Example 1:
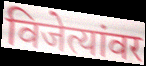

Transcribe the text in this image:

विजेत्यांवर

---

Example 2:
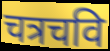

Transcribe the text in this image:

चत्रचवि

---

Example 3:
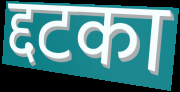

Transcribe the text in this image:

द्दटका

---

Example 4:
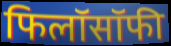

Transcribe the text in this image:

फिलॉसॉफी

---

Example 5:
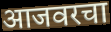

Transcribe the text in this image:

आजवरचा